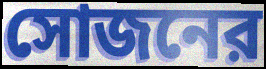
সোজনের